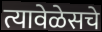
त्यावेळेसचे